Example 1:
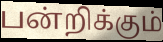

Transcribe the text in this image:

பன்றிக்கும்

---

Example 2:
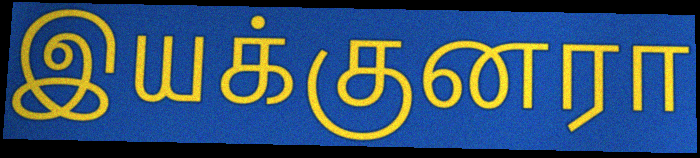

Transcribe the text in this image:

இயக்குனரா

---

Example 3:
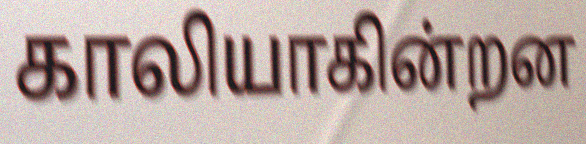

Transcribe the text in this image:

காலியாகின்றன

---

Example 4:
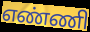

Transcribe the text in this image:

எண்ணி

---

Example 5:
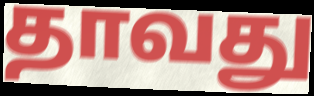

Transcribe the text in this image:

தாவது